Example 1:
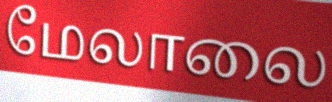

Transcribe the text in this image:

மேலாலை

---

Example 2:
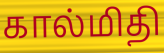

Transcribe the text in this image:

கால்மிதி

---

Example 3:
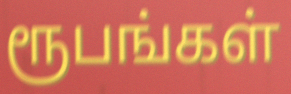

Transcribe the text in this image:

ரூபங்கள்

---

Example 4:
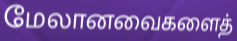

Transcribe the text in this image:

மேலானவைகளைத்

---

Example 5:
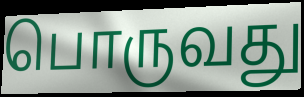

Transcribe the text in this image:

பொருவது